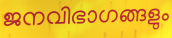
ജനവിഭാഗങ്ങളും